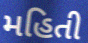
મહિતી